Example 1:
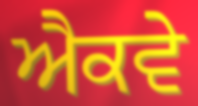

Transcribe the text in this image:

ਐਕਵੇ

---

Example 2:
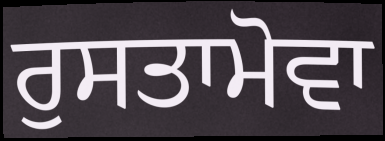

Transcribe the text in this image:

ਰੁਸਤਾਮੋਵਾ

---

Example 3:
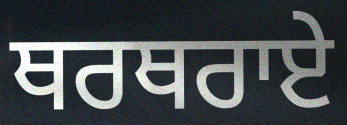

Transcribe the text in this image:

ਥਰਥਰਾਏ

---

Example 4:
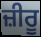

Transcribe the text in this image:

ਜ਼ੀਰੂ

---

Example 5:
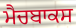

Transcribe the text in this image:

ਮੈਚਬਾਕਸ